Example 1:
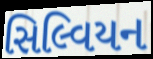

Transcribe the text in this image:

સિલ્વિયન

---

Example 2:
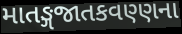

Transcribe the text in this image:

માતઙ્ગજાતકવણ્ણના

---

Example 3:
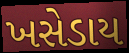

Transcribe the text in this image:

ખસેડાય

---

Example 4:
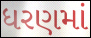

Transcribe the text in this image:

ધરણમાં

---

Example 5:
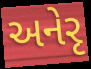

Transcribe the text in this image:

અનેરૃ